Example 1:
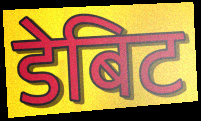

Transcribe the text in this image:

डेबिट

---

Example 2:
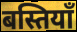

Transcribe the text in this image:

बस्तियाँ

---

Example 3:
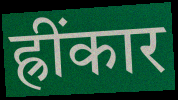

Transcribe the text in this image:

ह्रींकार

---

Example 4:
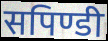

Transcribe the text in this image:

सपिण्डी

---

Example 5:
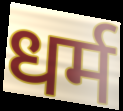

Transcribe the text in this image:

धर्म